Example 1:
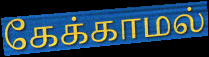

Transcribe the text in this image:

கேக்காமல்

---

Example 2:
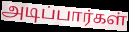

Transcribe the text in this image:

அடிப்பார்கள்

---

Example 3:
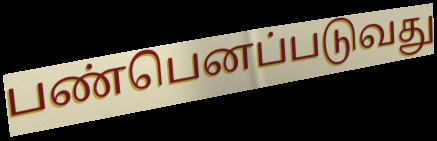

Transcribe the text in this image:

பண்பெனப்படுவது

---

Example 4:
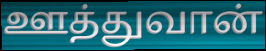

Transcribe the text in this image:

ஊத்துவான்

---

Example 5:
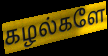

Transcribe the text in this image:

கழல்களே